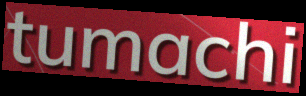
tumachi